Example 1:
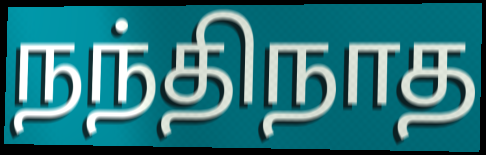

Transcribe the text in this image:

நந்திநாத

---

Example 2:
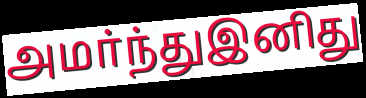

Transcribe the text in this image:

அமர்ந்துஇனிது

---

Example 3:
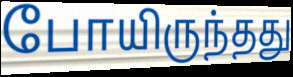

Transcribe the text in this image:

போயிருந்தது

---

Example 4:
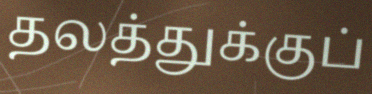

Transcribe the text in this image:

தலத்துக்குப்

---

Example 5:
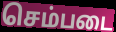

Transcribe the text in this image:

செம்படை